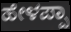
ಹೇಳಪ್ಪಾ